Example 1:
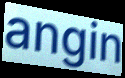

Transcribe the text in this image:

angin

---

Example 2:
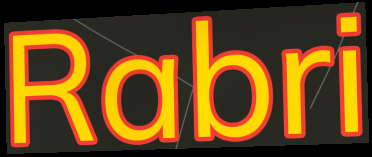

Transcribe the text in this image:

Rabri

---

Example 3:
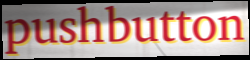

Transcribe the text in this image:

pushbutton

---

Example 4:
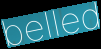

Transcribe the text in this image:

belled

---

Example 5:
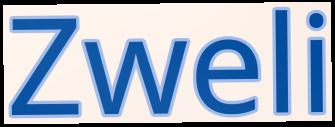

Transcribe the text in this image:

Zweli